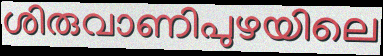
ശിരുവാണിപുഴയിലെ